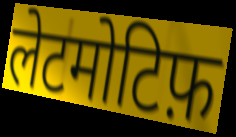
लेटमोटिफ़